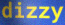
dizzy